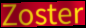
Zoster